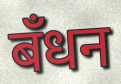
बँधन